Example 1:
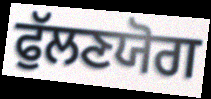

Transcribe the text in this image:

ਫੁੱਲਣਯੋਗ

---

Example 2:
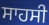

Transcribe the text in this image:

ਸਾਹਸੀ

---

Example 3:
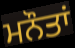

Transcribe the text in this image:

ਮਨੌਤਾਂ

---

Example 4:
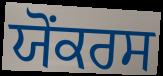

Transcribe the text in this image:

ਯੋੰਕਰਸ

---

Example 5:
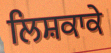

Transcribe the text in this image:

ਲਿਸ਼ਕਾਕੇ